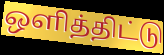
ஒளித்திட்டு